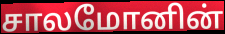
சாலமோனின்